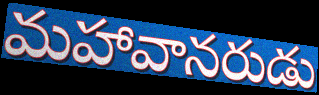
మహావానరుడు